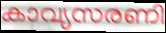
കാവ്യസരണി